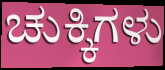
ಚುಕ್ಕಿಗಳು